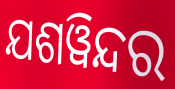
ଯଶୱିନ୍ଦର